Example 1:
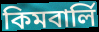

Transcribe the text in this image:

কিমবার্লি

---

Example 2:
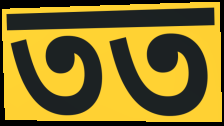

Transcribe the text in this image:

তত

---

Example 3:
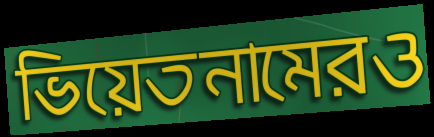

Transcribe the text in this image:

ভিয়েতনামেরও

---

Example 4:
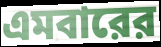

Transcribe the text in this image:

এমবারের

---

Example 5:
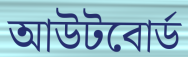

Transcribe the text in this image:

আউটবোর্ড